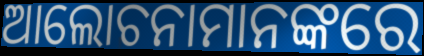
ଆଲୋଚନାମାନଙ୍କରେ